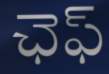
ఛెఫ్